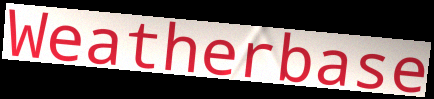
Weatherbase